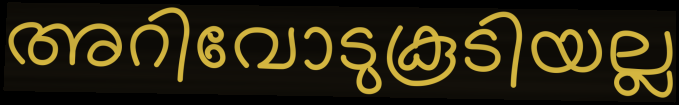
അറിവോടുകൂടിയല്ല